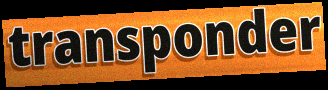
transponder